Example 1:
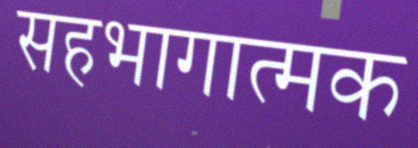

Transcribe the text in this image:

सहभागात्मक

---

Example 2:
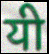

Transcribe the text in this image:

यी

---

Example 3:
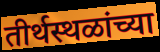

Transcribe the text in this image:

तीर्थस्थळांच्या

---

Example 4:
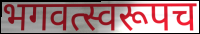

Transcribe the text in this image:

भगवत्स्वरूपच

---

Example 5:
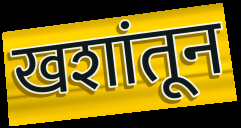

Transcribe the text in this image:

खशांतून